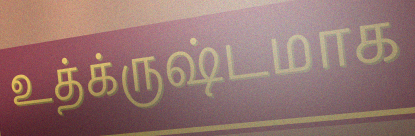
உத்க்ருஷ்டமாக